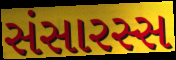
સંસારસ્સ